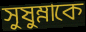
সুষুম্নাকে